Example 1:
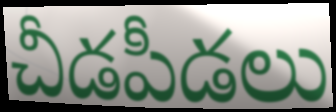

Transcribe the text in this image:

చీడపీడలు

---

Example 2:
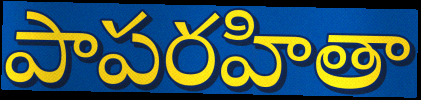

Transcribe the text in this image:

పాపరహితా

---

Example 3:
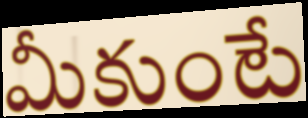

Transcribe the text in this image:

మీకుంటే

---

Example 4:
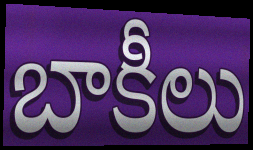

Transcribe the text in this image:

బాకీలు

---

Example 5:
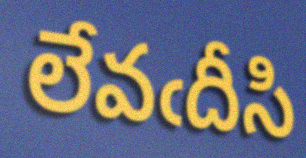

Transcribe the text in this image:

లేవఁదీసి